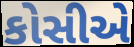
કોસીએ